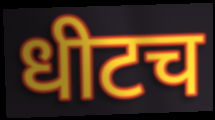
धीटच